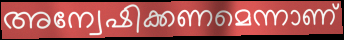
അന്വേഷിക്കണമെന്നാണ്